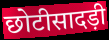
छोटीसादड़ी